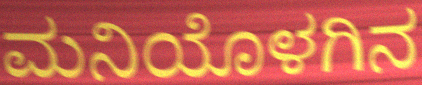
ಮನಿಯೊಳಗಿನ